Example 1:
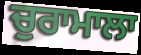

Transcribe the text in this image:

ਚੁਰਾਮਾਲਾ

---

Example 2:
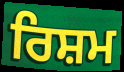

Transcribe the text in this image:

ਰਿਸ਼ਮ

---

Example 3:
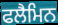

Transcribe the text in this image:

ਫਲੈਮਿਨ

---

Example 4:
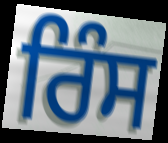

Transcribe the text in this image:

ਰਿੰਸ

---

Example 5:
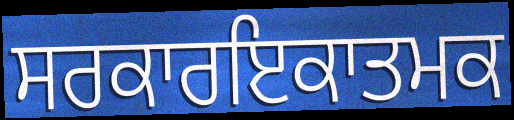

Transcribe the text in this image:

ਸਰਕਾਰਇਕਾਤਮਕ